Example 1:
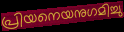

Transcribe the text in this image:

പ്രിയനെയനുഗമിച്ചു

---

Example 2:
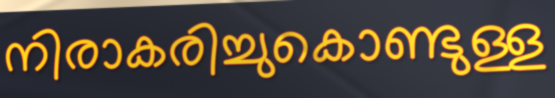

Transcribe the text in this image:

നിരാകരിച്ചുകൊണ്ടുള്ള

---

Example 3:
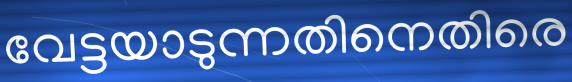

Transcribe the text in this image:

വേട്ടയാടുന്നതിനെതിരെ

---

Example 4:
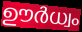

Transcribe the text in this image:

ഊർധ്വം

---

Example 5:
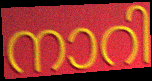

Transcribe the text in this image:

നാറി